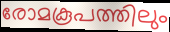
രോമകൂപത്തിലും